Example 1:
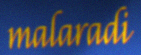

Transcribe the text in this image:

malaradi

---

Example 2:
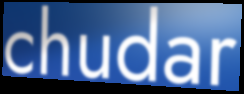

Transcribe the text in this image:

chudar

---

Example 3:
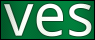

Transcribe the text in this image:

ves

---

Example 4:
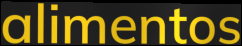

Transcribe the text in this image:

alimentos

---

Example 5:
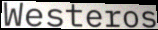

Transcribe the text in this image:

Westeros